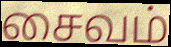
சைவம்